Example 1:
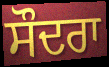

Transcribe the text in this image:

ਸੌਦਰਾ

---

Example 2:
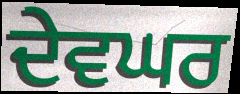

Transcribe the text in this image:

ਦੇਵਘਰ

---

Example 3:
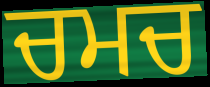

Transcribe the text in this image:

ਚਮਚ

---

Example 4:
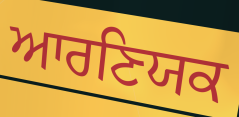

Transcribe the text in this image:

ਆਰਣਿਯਕ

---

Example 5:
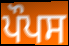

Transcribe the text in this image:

ਪੌਪਸ